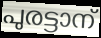
പുരട്ടാന്